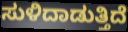
ಸುಳಿದಾಡುತ್ತಿದೆ